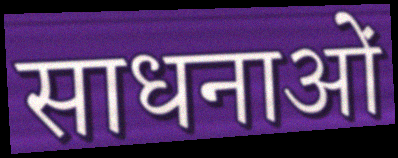
साधनाओं